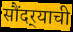
सौंदर्याची